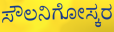
ಸೌಲನಿಗೋಸ್ಕರ